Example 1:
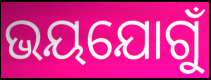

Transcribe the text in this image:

ଭୟଯୋଗୁଁ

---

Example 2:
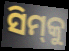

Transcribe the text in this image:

ସିମ୍‌କୁ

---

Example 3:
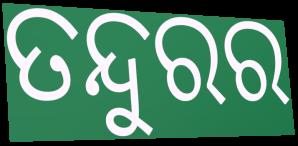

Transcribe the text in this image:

ତନ୍ଦୁରର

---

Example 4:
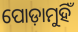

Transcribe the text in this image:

ପୋଡ଼ାମୁହିଁ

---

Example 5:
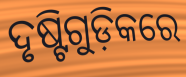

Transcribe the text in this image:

ଦୃଷ୍ଟିଗୁଡ଼ିକରେ